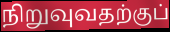
நிறுவுவதற்குப்